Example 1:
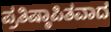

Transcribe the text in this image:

ಪ್ರತಿಷ್ಠಾಪಿತವಾದ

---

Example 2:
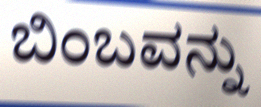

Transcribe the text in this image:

ಬಿಂಬವನ್ನು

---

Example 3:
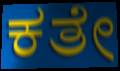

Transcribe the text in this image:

ಕತೇ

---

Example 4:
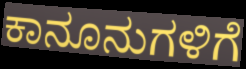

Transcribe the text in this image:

ಕಾನೂನುಗಳಿಗೆ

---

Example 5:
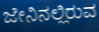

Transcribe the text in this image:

ಜೇನಿನಲ್ಲಿರುವ